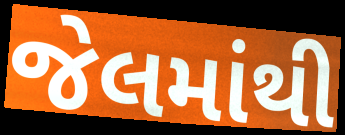
જેલમાંથી